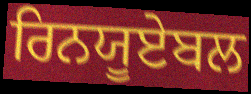
ਰਿਨਯੂਏਬਲ